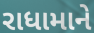
રાધામાને